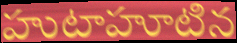
హుటాహూటిన